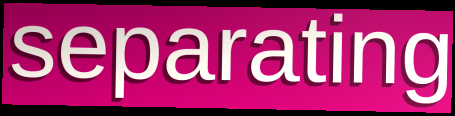
separating